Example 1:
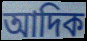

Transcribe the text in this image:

আদিক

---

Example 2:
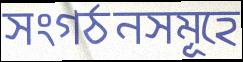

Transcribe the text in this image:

সংগঠনসমূহে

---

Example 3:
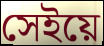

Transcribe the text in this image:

সেইয়ে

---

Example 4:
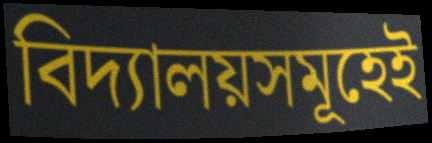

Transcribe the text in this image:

বিদ্যালয়সমূহেই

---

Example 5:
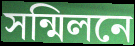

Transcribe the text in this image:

সন্মিলনে